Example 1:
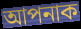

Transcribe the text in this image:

আপনাক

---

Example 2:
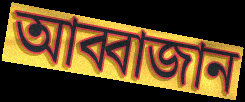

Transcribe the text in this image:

আব্বাজান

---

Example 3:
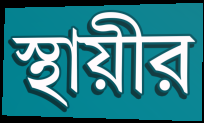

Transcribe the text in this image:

স্থায়ীর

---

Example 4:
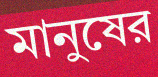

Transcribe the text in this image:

মানুষের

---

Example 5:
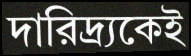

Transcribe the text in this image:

দারিদ্র্যকেই